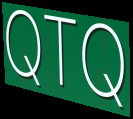
QTQ